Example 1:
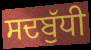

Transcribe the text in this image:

ਸਦਬੁੱਧੀ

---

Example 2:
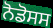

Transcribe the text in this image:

ਨੋਡੋਸਸ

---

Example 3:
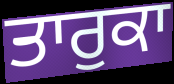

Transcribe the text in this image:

ਤਾਰੁਕਾ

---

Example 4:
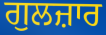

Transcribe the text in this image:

ਗੁਲਜ਼ਾਰ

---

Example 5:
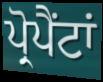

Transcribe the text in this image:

ਪ੍ਰੋਪੈਂਟਾਂ